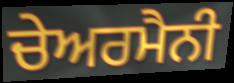
ਚੇਅਰਮੈਨੀ